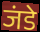
जंडे